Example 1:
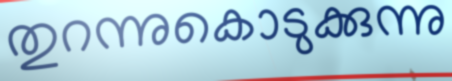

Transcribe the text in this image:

തുറന്നുകൊടുക്കുന്നു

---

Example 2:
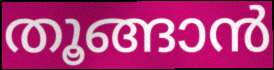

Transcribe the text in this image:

തൂങ്ങാൻ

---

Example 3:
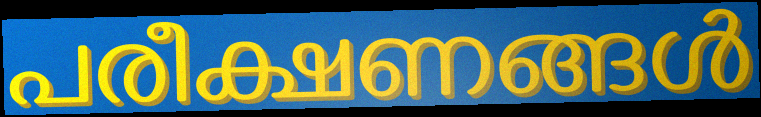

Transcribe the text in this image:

പരീക്ഷണങ്ങൾ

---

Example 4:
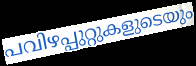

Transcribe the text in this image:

പവിഴപ്പുറ്റുകളുടെയും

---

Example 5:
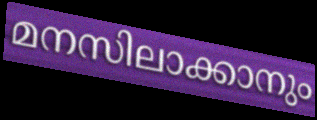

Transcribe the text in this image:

മനസിലാക്കാനും